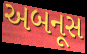
અબનૂસ